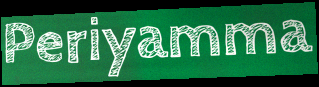
Periyamma